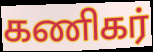
கணிகர்